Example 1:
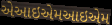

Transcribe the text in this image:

એઆઇએમઆઇએમ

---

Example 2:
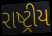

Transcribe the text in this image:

રાષ્ટ્રીય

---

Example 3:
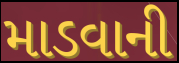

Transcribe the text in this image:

માડવાની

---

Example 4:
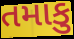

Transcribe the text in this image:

તમાકુ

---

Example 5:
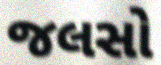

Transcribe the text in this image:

જલસો